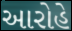
આરોહે